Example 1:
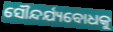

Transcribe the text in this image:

ସୌନ୍ଦର୍ଯ୍ୟବୋଧକୁ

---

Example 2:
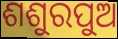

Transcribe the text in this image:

ଶଶୁରପୁଅ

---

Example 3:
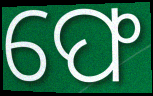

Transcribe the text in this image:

ଫେ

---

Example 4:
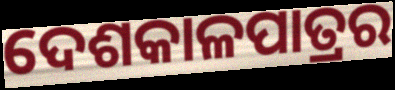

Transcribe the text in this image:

ଦେଶକାଳପାତ୍ରର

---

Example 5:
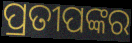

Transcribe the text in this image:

ପ୍ରତୀପଙ୍କର